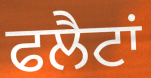
ਫਲੈਟਾਂ